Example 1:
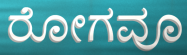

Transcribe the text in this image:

ರೋಗವೂ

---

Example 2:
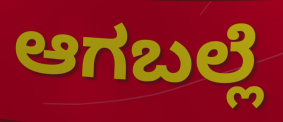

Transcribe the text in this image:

ಆಗಬಲ್ಲೆ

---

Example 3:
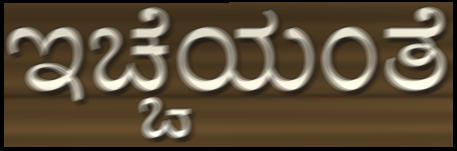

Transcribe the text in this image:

ಇಚ್ಚೆಯಂತೆ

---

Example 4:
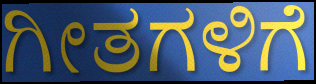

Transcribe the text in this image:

ಗೀತಗಳಿಗೆ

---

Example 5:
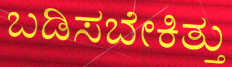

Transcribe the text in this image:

ಬಡಿಸಬೇಕಿತ್ತು